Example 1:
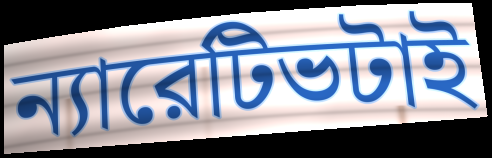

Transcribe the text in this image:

ন্যারেটিভটাই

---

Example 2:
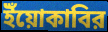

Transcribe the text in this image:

ইঁয়োকাবির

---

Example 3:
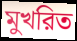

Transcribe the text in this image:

মুখরিত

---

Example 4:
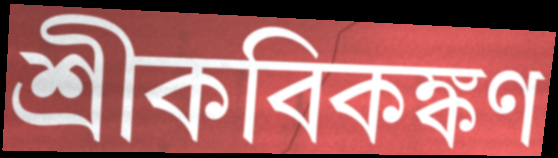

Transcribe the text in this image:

শ্রীকবিকঙ্কণ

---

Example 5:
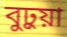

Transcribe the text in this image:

বুঢ়ুয়া